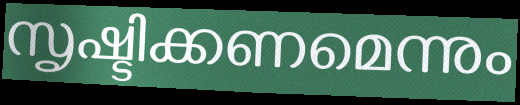
സൃഷ്ടിക്കണമെന്നും